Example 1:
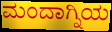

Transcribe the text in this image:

ಮಂದಾಗ್ನಿಯ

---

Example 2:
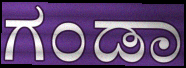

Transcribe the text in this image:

ಗಂಡಾ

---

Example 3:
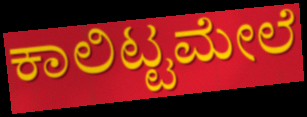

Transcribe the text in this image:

ಕಾಲಿಟ್ಟಮೇಲೆ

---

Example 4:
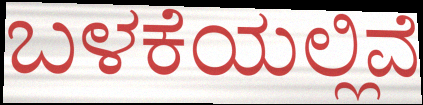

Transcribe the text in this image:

ಬಳಕೆಯಲ್ಲಿವೆ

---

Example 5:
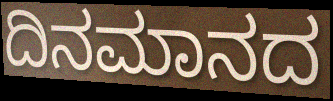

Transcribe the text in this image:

ದಿನಮಾನದ